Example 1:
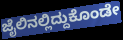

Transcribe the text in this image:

ಜೈಲಿನಲ್ಲಿದ್ದುಕೊಂಡೇ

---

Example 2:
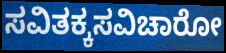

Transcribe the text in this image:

ಸವಿತಕ್ಕಸವಿಚಾರೋ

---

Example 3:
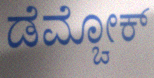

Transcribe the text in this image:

ಡೆಮ್ಚೋಕ್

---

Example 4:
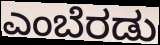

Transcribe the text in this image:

ಎಂಬೆರಡು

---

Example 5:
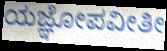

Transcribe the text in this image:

ಯಜ್ಞೋಪವೀತೀ